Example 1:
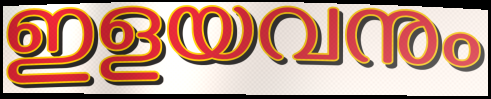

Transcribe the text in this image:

ഇളയവനും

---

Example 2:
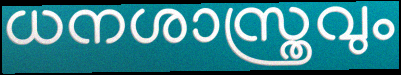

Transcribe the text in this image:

ധനശാസ്ത്രവും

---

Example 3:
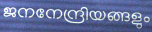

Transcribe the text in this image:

ജനനേന്ദ്രിയങ്ങളും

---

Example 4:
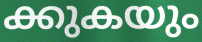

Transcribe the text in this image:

ക്കുകയും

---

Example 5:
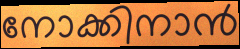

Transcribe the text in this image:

നോക്കിനാൻ